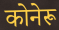
कोनेरू